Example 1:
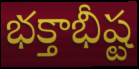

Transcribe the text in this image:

భక్తాభీష్ట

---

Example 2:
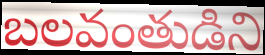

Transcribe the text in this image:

బలవంతుడిని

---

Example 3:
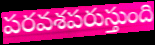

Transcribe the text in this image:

పరవశపరుస్తుంది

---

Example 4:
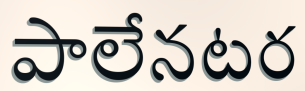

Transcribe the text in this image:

పాలేనటర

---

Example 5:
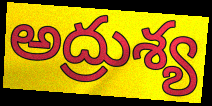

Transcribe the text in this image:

అద్రుశ్య